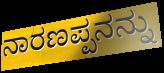
ನಾರಣಪ್ಪನನ್ನು